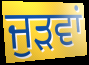
ਜੁੜਵਾਂ